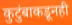
कुटुंबाकडूनही